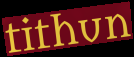
tithun